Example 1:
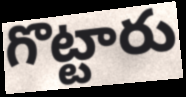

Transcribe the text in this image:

గొట్టారు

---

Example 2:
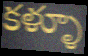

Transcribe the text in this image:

కళ్ళూ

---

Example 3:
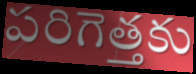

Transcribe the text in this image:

పరిగెత్తకు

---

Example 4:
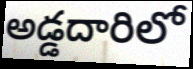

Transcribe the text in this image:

అడ్డదారిలో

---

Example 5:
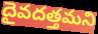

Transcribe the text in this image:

దైవదత్తమని